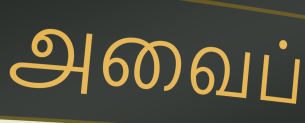
அவைப்